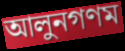
আলুনগণম